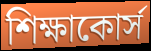
শিক্ষাকোর্স